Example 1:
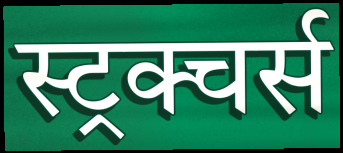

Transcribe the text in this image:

स्ट्रक्चर्स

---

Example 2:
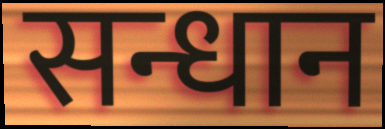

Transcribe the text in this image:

सन्धान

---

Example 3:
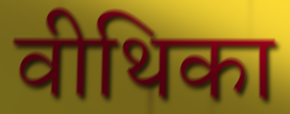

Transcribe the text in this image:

वीथिका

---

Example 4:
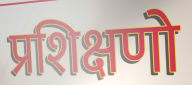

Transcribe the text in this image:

प्रशिक्षणो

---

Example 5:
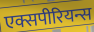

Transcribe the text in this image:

एक्सपीरियन्स